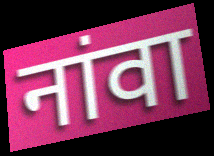
नांवा